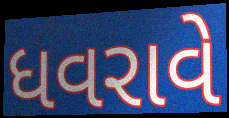
ધવરાવે